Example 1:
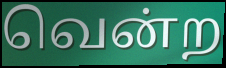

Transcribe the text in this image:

வென்ற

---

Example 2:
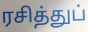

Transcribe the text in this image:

ரசித்துப்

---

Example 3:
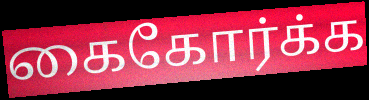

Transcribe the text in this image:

கைகோர்க்க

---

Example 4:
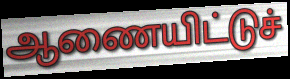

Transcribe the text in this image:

ஆணையிட்டுச்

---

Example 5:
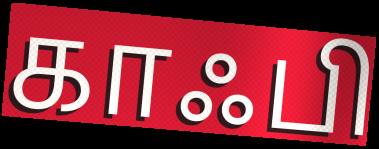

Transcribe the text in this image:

காஃபி